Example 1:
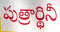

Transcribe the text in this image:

పుత్రార్థినీ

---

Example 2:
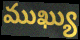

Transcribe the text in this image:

ముఖ్యు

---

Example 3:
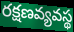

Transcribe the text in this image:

రక్షణవ్యవస్థ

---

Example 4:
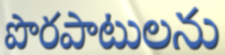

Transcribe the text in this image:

పొరపాటులను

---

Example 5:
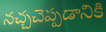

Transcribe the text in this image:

నచ్చచెప్పడానికి